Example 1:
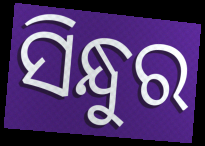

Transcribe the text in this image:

ସିନ୍ଧୁର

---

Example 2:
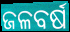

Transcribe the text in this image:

ଜଳବର୍ଷ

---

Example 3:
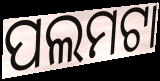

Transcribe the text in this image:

ପଲମଟା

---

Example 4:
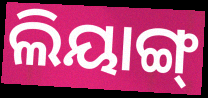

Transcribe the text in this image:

ଲିୟାଙ୍ଗ୍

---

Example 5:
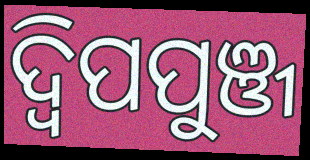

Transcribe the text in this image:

ଦ୍ଵିପପୁଞ୍ଜ